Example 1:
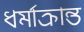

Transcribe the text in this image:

ধর্মাক্রান্ত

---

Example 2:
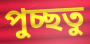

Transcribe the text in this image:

পুচ্ছতু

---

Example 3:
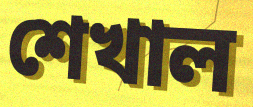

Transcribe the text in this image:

শেখাল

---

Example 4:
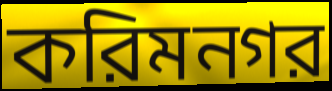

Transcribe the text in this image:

করিমনগর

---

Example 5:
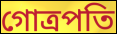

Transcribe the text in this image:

গোত্রপতি